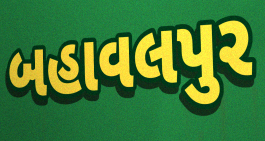
બહાવલપુર